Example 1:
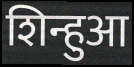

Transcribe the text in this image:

शिन्हुआ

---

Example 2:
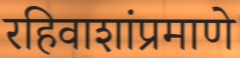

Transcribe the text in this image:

रहिवाशांप्रमाणे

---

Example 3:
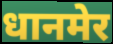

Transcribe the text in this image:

धानमेर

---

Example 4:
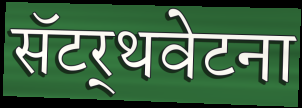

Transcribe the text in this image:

सॅटर्थवेटना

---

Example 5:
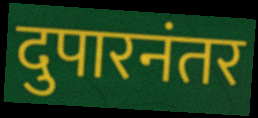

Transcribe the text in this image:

दुपारनंतर